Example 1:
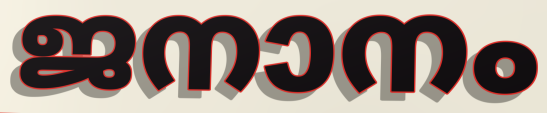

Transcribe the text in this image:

ജനാനം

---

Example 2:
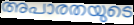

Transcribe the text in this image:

അപാരതയുടെ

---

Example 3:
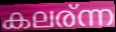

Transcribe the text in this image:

കലര്ന്ന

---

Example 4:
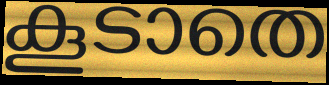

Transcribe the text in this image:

കൂടാതെ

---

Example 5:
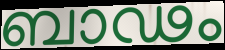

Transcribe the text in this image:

ബാഢം